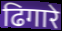
ढिगारे